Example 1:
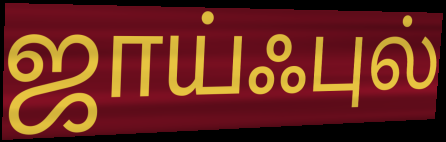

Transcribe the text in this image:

ஜாய்ஃபுல்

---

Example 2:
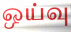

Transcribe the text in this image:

ஒய்வு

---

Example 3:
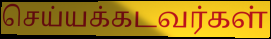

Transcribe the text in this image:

செய்யக்கடவர்கள்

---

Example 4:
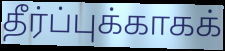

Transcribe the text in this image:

தீர்ப்புக்காகக்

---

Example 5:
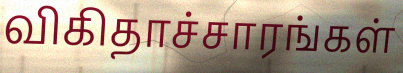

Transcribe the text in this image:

விகிதாச்சாரங்கள்